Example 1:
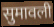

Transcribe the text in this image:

सुमावली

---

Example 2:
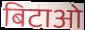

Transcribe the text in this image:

बिटाओ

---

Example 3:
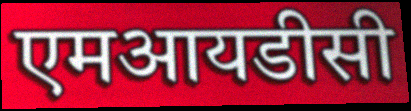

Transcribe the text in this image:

एमआयडीसी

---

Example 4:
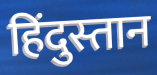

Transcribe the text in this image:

हिंदुस्‍तान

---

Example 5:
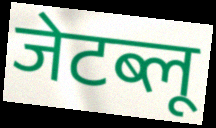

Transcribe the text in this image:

जेटब्लू